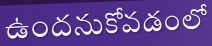
ఉందనుకోవడంలో